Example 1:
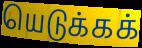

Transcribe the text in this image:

யெடுக்கக்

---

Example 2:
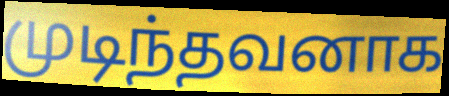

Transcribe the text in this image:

முடிந்தவனாக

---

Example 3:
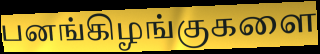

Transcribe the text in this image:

பனங்கிழங்குகளை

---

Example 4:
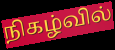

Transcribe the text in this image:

நிகழ்வில்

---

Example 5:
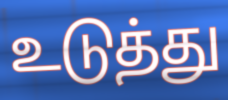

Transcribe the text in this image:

உடுத்து